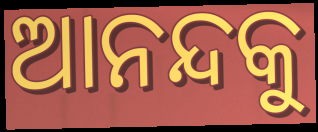
ଆନନ୍ଦକୁ